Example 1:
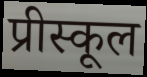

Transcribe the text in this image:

प्रीस्कूल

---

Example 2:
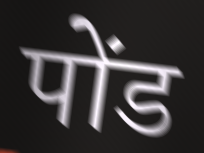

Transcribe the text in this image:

पोंड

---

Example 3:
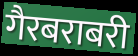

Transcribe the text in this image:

गैरबराबरी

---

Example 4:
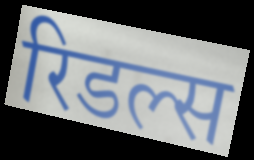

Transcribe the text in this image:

रिडल्स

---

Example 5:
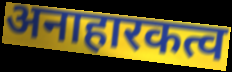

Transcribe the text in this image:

अनाहारकत्व